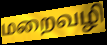
மறைவழி